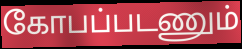
கோபப்படணும்